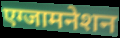
एग्जामनेशन